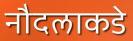
नौदलाकडे